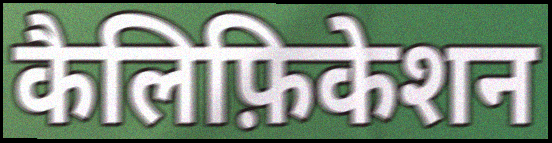
कैलिफ़िकेशन